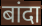
बांदा